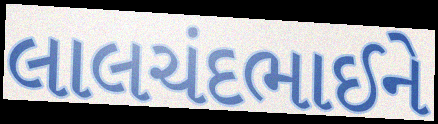
લાલચંદભાઈને